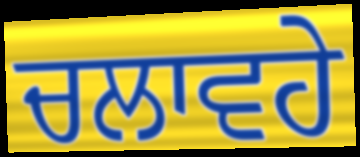
ਚਲਾਵਹੇ